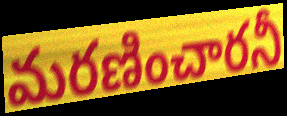
మరణించారనీ